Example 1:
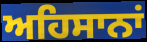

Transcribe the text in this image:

ਅਹਿਸਾਨਾਂ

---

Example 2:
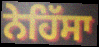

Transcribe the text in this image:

ਨੇਹਿੱਸਾ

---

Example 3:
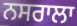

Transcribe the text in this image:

ਨਸਰਾਲਾ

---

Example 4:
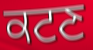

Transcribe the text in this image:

ਕਟਣ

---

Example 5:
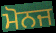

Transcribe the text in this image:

ਮੋਨਜ